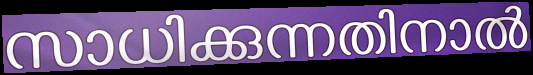
സാധിക്കുന്നതിനാൽ